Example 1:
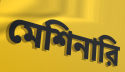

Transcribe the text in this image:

মেশিনারি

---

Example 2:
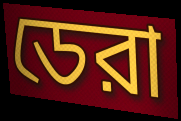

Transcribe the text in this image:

ডেরা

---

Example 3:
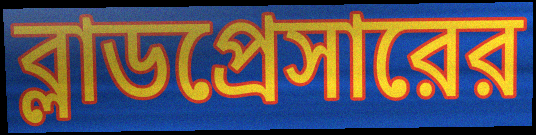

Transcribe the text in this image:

ব্লাডপ্রেসারের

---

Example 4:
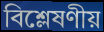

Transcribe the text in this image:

বিশ্লেষণীয়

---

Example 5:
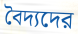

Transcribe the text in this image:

বৈদ্যদের